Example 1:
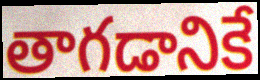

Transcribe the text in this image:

తాగడానికే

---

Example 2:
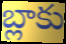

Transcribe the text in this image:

బ్లాకు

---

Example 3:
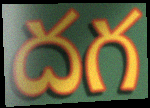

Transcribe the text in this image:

దగ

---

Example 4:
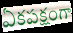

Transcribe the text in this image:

ఏకపక్షంగా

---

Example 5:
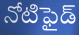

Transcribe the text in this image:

నోటిఫైడ్